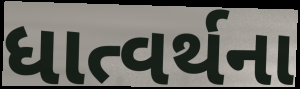
ધાત્વર્થના